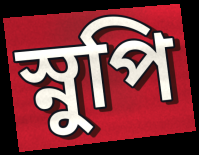
স্নুপি